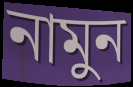
নামুন